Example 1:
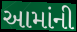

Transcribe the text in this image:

આમાંની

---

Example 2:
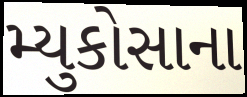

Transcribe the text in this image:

મ્યુકોસાના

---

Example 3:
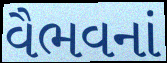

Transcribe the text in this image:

વૈભવનાં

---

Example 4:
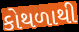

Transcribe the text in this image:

કોથળાથી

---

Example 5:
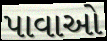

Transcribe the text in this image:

પાવાઓ